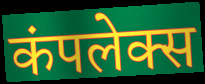
कंपलेक्स